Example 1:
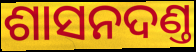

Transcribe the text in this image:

ଶାସନଦଣ୍ତ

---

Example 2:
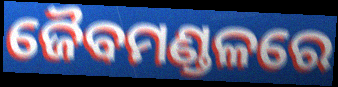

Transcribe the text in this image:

ଜୈବମଣ୍ଡଳରେ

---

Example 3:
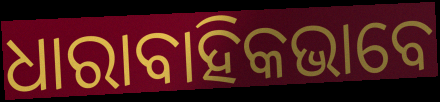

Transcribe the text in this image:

ଧାରାବାହିକଭାବେ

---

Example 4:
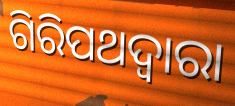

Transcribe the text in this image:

ଗିରିପଥଦ୍ୱାରା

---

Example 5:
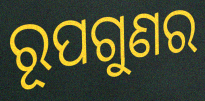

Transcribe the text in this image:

ରୂପଗୁଣର